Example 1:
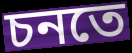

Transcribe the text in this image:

চনতে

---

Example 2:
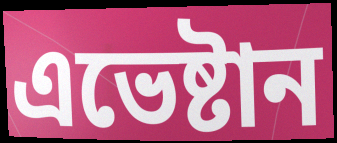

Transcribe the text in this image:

এভেষ্টান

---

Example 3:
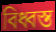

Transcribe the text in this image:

বিধ্বস্ত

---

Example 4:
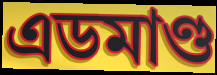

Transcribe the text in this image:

এডমাণ্ড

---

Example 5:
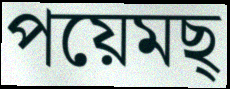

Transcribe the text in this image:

পয়েমছ্